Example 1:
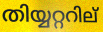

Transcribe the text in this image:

തിയ്യറ്ററില്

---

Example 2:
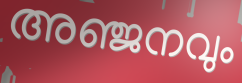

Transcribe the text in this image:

അഞ്ജനവും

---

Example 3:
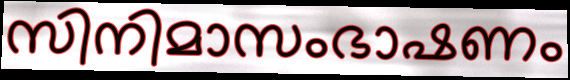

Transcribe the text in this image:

സിനിമാസംഭാഷണം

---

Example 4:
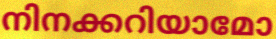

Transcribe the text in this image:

നിനക്കറിയാമോ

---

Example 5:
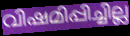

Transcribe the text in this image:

വിഷമിപ്പിച്ചില്ല